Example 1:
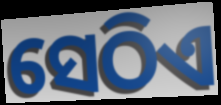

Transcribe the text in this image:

ସେଠିଏ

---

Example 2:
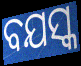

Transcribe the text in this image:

ବଯସ୍କ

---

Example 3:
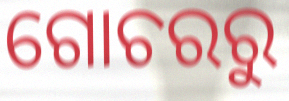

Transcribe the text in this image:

ଗୋଚରରୁ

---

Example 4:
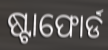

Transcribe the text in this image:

ଷ୍ଟାଫୋର୍ଡ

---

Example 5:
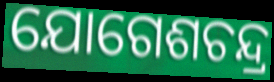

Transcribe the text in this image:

ଯୋଗେଶଚନ୍ଦ୍ର